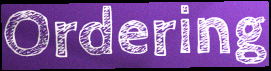
Ordering